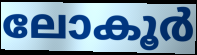
ലോകൂർ